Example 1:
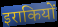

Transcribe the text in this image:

इराकियों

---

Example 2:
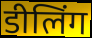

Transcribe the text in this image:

डीलिंग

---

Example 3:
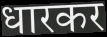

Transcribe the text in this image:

धारकर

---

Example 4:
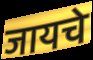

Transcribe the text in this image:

जायचे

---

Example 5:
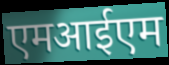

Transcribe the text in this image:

एमआईएम